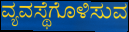
ವ್ಯವಸ್ಥೆಗೊಳಿಸುವ